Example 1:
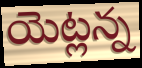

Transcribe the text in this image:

యెట్లన్న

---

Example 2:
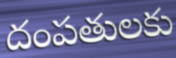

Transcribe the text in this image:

దంపతులకు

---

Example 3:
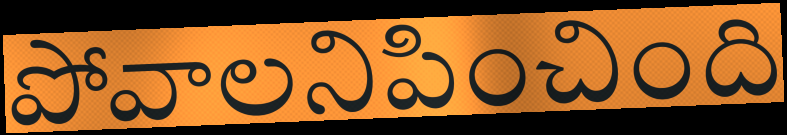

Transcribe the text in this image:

పోవాలనిపించింది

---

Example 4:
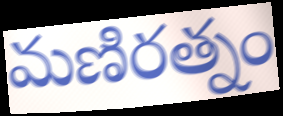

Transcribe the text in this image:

మణిరత్నం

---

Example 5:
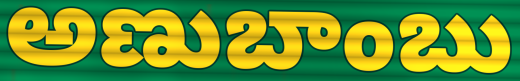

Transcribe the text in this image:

అణుబాంబు